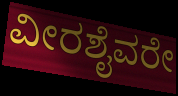
ವೀರಶೈವರೇ